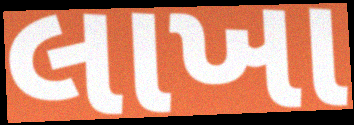
લાખા